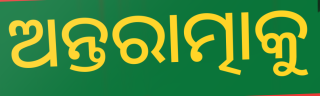
ଅନ୍ତରାତ୍ମାକୁ